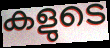
കളുടെ